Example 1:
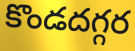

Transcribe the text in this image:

కొండదగ్గర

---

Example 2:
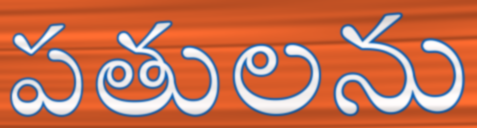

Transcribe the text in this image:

పతులను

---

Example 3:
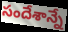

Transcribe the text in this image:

సందేశాన్నే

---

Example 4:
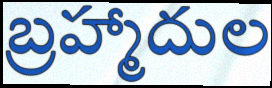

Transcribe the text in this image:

బ్రహ్మాదుల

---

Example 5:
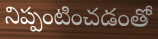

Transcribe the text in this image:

నిప్పంటించడంతో